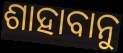
ଶାହାବାନୁ